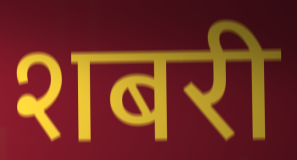
शबरी